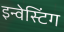
इन्वेस्टिंग